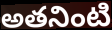
అతనింటి